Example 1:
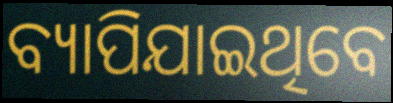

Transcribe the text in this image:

ବ୍ୟାପିଯାଇଥିବେ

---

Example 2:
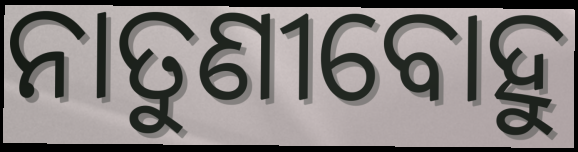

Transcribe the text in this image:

ନାତୁଣୀବୋହୁ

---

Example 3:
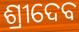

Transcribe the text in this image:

ଶ୍ରୀଦେବ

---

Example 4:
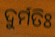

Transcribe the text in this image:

ଦୁର୍ମତିଃ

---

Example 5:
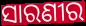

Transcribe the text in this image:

ସାରଣୀର